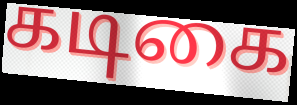
கடிகை